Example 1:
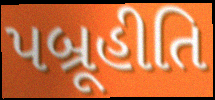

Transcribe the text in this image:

પબ્રૂહીતિ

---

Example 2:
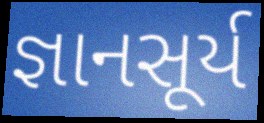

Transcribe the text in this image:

જ્ઞાનસૂર્ય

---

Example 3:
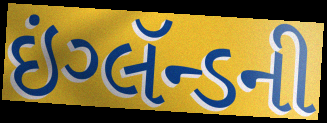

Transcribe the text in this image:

ઇંગ્લૅન્ડની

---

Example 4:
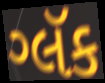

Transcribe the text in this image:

ગ્લૅક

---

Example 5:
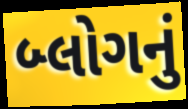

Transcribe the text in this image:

બ્લોગનું